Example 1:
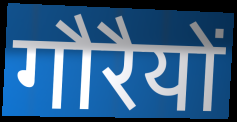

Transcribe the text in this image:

गौरैयों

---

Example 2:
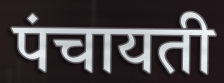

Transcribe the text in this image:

पंचायती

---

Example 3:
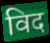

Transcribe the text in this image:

विद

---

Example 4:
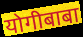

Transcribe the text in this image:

योगीबाबा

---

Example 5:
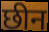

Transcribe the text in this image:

छीन